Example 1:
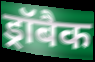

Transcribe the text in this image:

ड्रॉबैक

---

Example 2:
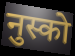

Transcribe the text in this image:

नुस्को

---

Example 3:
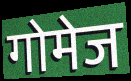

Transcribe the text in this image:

गोमेज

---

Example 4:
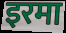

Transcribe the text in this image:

इरमा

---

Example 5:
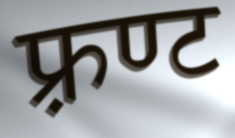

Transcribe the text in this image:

फ़्रण्ट